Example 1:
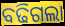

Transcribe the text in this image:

ବଢିଗଲା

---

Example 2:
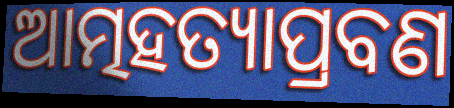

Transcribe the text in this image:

ଆତ୍ମହତ୍ୟାପ୍ରବଣ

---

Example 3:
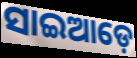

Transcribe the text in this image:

ସାଇଆଡ଼େ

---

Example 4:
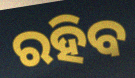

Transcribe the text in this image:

ରହିବ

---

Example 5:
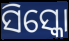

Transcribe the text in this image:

ସିସ୍କୋ